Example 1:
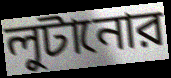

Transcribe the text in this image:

লুটানোর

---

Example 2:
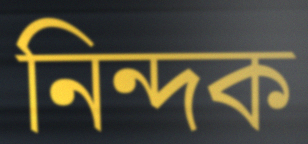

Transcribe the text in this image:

নিন্দক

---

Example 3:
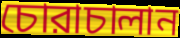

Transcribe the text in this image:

চোরাচালান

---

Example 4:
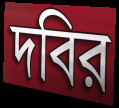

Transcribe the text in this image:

দবির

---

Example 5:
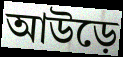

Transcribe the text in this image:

আউড়ে